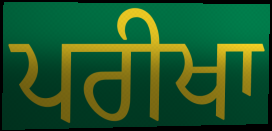
ਪਰੀਖਾ